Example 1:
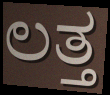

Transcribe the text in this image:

ಲತ್ತ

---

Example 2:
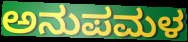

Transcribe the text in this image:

ಅನುಪಮಳ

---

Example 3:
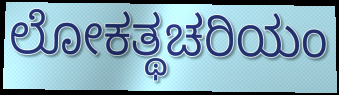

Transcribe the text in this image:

ಲೋಕತ್ಥಚರಿಯಂ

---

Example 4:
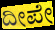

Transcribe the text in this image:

ದೀಪೇ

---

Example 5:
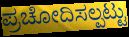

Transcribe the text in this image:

ಪ್ರಚೋದಿಸಲ್ಪಟ್ಟು